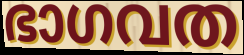
ഭാഗവത